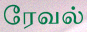
ரேவல்